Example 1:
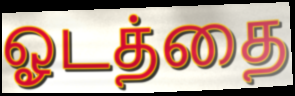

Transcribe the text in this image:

ஓடத்தை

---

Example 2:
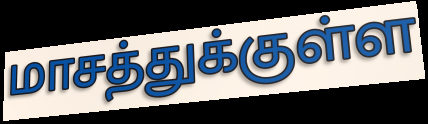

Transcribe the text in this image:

மாசத்துக்குள்ள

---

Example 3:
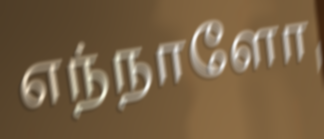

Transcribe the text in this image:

எந்நாளோ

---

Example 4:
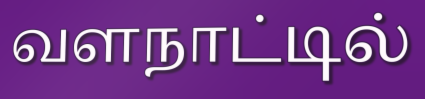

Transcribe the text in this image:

வளநாட்டில்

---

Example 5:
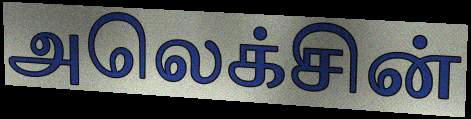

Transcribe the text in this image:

அலெக்சின்